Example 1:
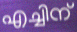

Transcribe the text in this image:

എച്ചിന്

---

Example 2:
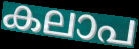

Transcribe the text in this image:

കലാപ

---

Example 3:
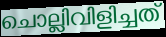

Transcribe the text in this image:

ചൊല്ലിവിളിച്ചത്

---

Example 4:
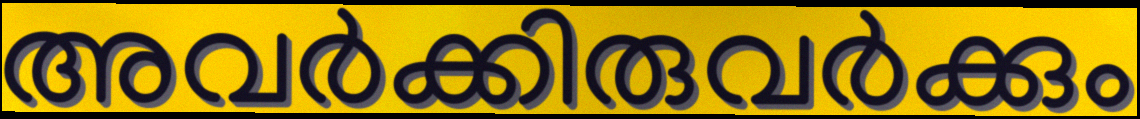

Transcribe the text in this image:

അവർക്കിരുവർക്കും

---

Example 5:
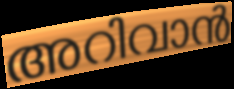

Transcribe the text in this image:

അറിവാൻ